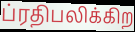
ப்ரதிபலிக்கிற